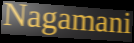
Nagamani